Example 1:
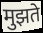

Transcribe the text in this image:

मुझते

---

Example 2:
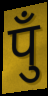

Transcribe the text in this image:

पुँ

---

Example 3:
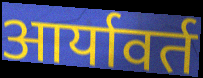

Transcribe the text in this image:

आर्यावर्त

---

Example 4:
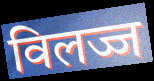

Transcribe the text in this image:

विलज्ज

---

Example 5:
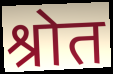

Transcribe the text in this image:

श्रोत